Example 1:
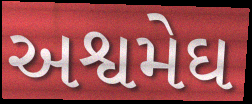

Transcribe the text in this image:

અશ્વમેઘ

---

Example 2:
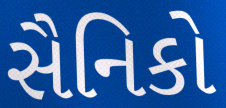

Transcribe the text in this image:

સૈનિકો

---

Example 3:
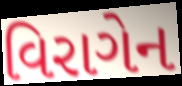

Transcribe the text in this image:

વિરાગેન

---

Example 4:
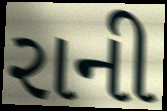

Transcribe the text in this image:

રાની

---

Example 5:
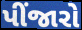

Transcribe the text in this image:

પીંજારો